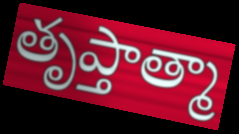
తృప్తాత్మా